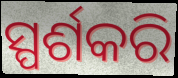
ସ୍ପର୍ଶକରି